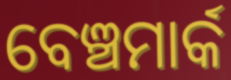
ବେଞ୍ଚମାର୍କ